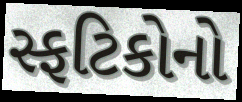
સ્ફટિકોનો